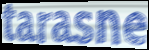
tarasne